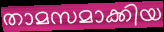
താമസമാക്കിയ